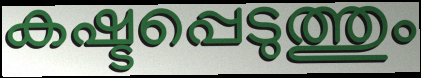
കഷ്ടപ്പെടുത്തും